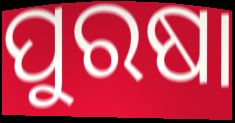
ପୁରଷା